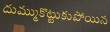
దుమ్ముకొట్టుకుపోయిన